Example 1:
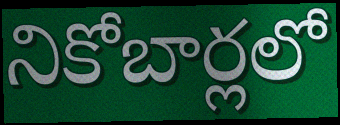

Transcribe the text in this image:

నికోబార్లలో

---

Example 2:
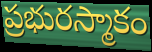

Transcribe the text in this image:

ప్రభురస్మాకం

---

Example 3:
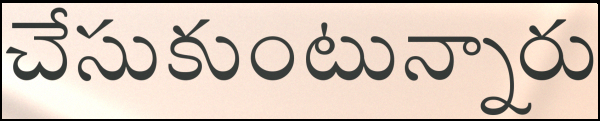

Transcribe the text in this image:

చేసుకుంటున్నారు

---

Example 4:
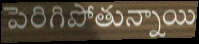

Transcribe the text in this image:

పెరిగిపోతున్నాయి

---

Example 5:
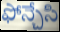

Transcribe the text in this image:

ఫోన్చేసి